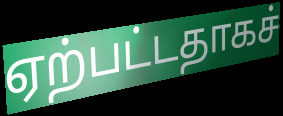
ஏற்பட்டதாகச்